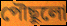
পৌছুলো